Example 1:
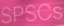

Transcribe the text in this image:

SPSCs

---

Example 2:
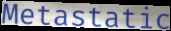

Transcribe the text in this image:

Metastatic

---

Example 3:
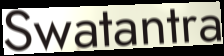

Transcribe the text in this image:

Swatantra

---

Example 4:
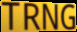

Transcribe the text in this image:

TRNG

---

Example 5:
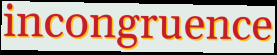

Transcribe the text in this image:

incongruence